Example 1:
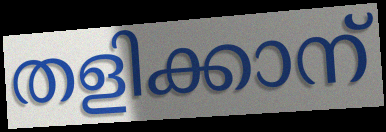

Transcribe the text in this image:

തളിക്കാന്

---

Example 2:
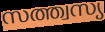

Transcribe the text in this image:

സത്ത്വസ്യ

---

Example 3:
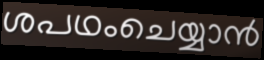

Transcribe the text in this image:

ശപഥംചെയ്യാൻ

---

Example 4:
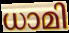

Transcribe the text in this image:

ധാമി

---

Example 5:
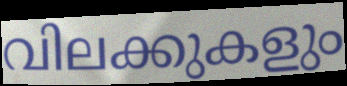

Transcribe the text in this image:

വിലക്കുകളും